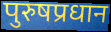
पुरुषप्रधान